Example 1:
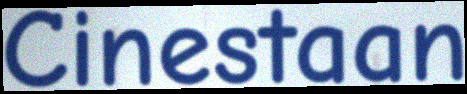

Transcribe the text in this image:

Cinestaan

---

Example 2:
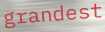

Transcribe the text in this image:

grandest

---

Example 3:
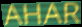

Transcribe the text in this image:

AHAR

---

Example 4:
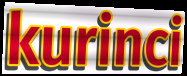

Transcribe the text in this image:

kurinci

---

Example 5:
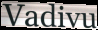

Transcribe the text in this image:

Vadivu